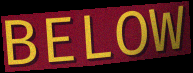
BELOW